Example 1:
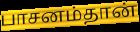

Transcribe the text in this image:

பாசனம்தான்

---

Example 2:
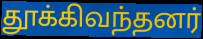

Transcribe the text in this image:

தூக்கிவந்தனர்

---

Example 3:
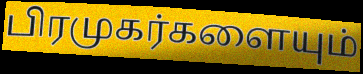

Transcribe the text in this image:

பிரமுகர்களையும்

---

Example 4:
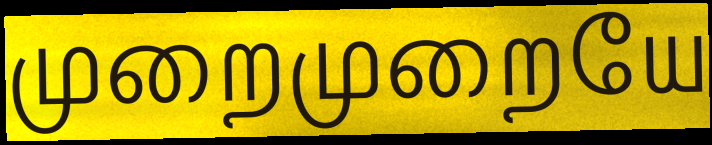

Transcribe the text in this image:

முறைமுறையே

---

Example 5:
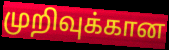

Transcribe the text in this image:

முறிவுக்கான